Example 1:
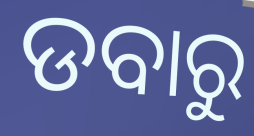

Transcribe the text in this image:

ଡବାରୁ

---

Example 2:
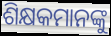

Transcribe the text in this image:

ଶିକ୍ଷକମାନଙ୍କୁ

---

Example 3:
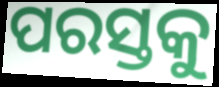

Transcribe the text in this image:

ପରସ୍ତକୁ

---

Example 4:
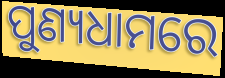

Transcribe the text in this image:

ପୁଣ୍ୟଧାମରେ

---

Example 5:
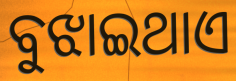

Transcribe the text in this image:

ବୁଝାଇଥାଏ